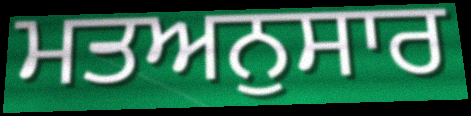
ਮਤਅਨੁਸਾਰ